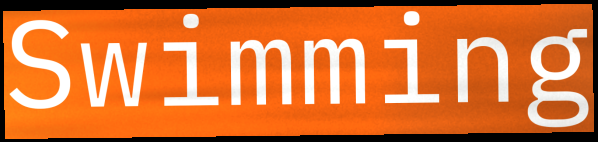
Swimming